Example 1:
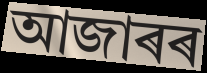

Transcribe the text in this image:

আজাৰৰ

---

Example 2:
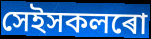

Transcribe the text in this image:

সেইসকলৰো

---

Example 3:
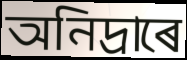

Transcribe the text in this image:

অনিদ্ৰাৰে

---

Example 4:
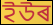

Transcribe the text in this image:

ইউৰ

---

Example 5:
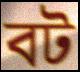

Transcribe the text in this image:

বট